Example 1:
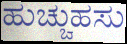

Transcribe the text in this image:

ಹುಚ್ಚುಹಸು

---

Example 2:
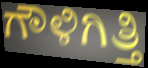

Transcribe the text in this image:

ಗೌಳಿಗಿತ್ತಿ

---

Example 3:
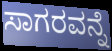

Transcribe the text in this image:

ಸಾಗರವನ್ನೆ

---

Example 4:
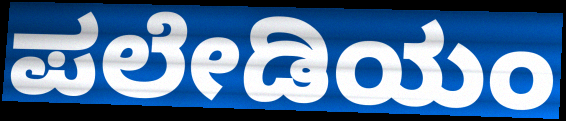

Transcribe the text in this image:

ಪಲೇಡಿಯಂ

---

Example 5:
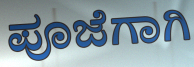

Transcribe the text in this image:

ಪೂಜೆಗಾಗಿ